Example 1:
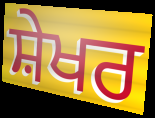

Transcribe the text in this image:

ਸ਼ੇਖਰ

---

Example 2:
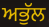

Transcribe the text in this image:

ਅਭੁੱਲ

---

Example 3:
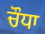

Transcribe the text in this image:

ਚੌਧਾ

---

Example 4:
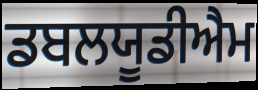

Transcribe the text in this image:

ਡਬਲਯੂਡੀਐਮ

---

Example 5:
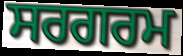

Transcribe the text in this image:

ਸਰਗਰਮ